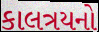
કાલત્રયનો